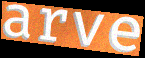
arve